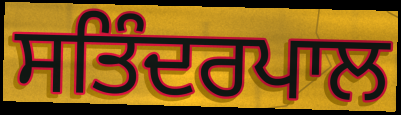
ਸਤਿੰਦਰਪਾਲ